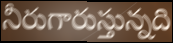
నీరుగారుస్తున్నది